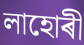
লাহোৰী